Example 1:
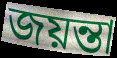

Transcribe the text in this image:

জয়ন্তা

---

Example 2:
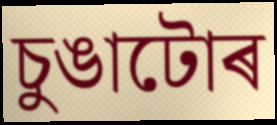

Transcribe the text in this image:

চুঙাটোৰ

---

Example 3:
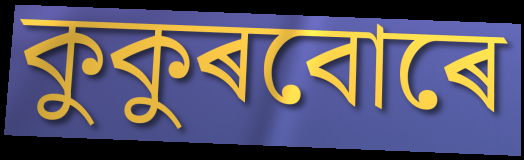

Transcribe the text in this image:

কুকুৰবোৰে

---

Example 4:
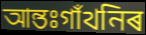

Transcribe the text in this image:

আন্তঃগাঁথনিৰ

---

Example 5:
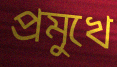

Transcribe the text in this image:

প্ৰমুখে